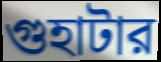
গুহাটার